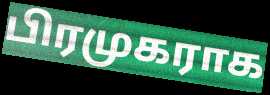
பிரமுகராக